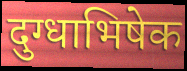
दुग्धाभिषेक